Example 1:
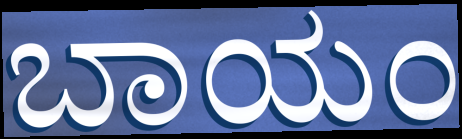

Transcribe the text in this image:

ಬಾಯಂ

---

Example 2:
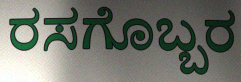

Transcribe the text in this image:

ರಸಗೊಬ್ಬರ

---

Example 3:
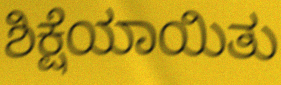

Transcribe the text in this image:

ಶಿಕ್ಷೆಯಾಯಿತು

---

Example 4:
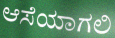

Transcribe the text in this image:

ಆಸೆಯಾಗಲಿ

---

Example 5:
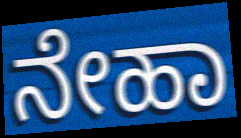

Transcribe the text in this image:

ನೇಹಾ